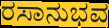
ರಸಾನುಭವ